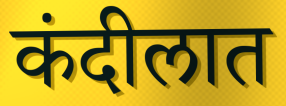
कंदीलात